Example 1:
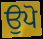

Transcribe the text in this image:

ਉਪੋ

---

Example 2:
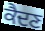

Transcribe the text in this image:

ਕੈਦਣ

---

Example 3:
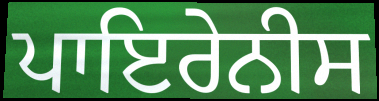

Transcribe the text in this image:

ਪਾਇਰੇਨੀਸ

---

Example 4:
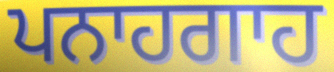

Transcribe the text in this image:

ਪਨਾਹਗਾਹ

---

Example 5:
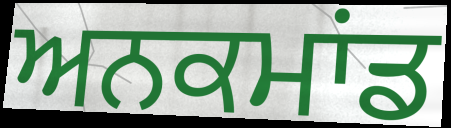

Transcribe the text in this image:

ਅਨਕਮਾਂਡ